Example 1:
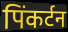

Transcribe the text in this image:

पिंकर्टन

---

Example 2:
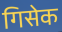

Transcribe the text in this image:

गिसेक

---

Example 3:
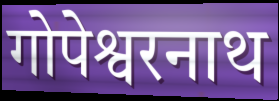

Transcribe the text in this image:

गोपेश्वरनाथ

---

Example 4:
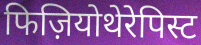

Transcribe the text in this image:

फिज़ियोथेरेपिस्ट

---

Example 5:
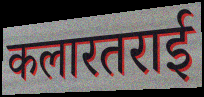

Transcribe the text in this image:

कलारतराई